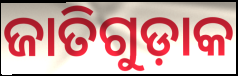
ଜାତିଗୁଡ଼ାକ